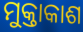
ମୁକ୍ତାକାଶ